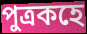
পুত্ৰকহে